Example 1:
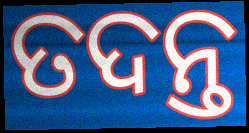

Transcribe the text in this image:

ତଦନ୍ତ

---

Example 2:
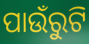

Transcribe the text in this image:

ପାଉଁରୁଟି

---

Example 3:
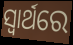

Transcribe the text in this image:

ସ୍ଵାର୍ଥରେ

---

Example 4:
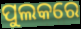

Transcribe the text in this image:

ପୁଲକରେ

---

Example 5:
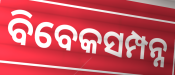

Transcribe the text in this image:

ବିବେକସମ୍ପନ୍ନ